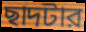
ছাদটার